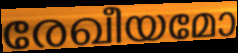
രേഖീയമോ